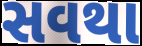
સવથા